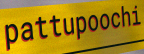
pattupoochi